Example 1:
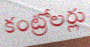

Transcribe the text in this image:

కంట్రోలర్లు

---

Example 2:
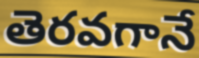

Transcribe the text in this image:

తెరవగానే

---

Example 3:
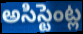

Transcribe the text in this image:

అసిస్టెంట్ల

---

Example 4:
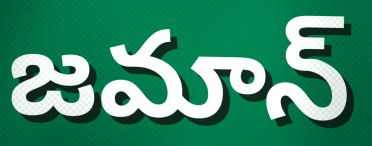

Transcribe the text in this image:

జమాన్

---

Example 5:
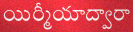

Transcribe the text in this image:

యిర్మీయాద్వారా